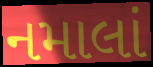
નમાલાં